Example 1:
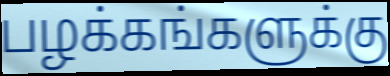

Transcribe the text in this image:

பழக்கங்களுக்கு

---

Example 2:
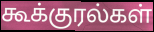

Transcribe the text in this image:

கூக்குரல்கள்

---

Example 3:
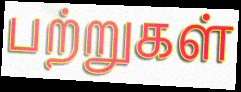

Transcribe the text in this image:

பற்றுகள்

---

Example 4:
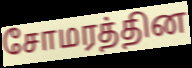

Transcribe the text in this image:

சோமரத்தின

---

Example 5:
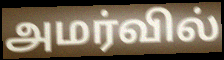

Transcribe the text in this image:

அமர்வில்